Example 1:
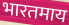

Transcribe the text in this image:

भारतमाय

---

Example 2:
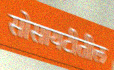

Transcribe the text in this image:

सोसायटीतील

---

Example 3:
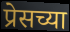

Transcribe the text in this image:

प्रेसच्या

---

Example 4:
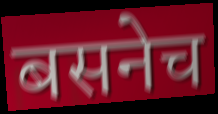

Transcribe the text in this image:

बसनेच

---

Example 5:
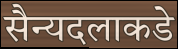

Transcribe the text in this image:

सैन्यदलाकडे